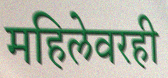
महिलेवरही